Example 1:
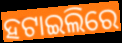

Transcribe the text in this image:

ହଟାଇଲିରେ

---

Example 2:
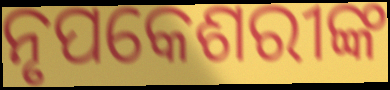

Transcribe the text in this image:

ନୃପକେଶରୀଙ୍କ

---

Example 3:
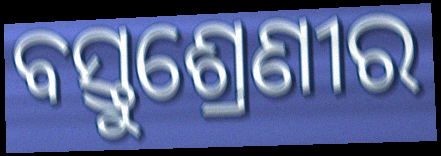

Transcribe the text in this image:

ବସ୍ତୁଶ୍ରେଣୀର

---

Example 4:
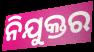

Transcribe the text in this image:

ନିଯୁକ୍ତର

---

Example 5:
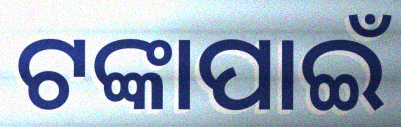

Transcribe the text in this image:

ଟଙ୍କାପାଇଁ